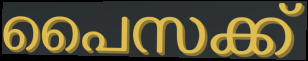
പൈസക്ക്